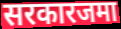
सरकारजमा